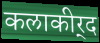
कलाकीर्द